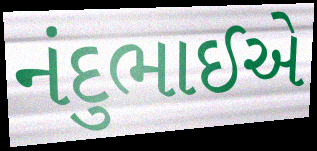
નંદુભાઈએ